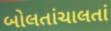
બોલતાંચાલતાં